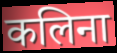
कलिना